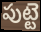
పుట్టె